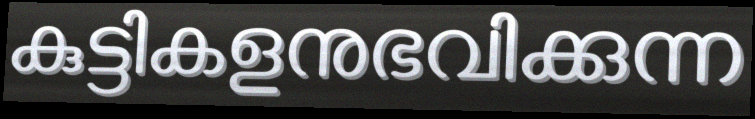
കുട്ടികളനുഭവിക്കുന്ന